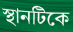
স্থানটিকে